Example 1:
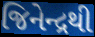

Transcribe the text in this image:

જિનેન્દ્રથી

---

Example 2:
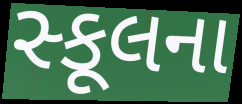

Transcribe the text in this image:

સ્કૂલના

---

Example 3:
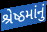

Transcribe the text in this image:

શ્રેષ્ઠમાંનું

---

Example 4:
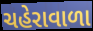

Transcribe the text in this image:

ચહેરાવાળા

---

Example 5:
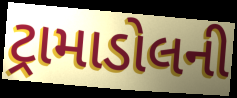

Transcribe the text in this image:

ટ્રામાડોલની